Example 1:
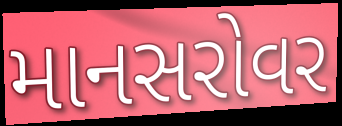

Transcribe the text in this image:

માનસરોવર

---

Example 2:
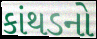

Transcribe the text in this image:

કાંથડનો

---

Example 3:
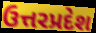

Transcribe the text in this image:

ઉત્તરપ્રદેશ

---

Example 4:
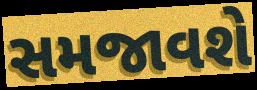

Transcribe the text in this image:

સમજાવશે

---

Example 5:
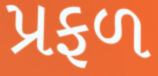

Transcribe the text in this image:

પ્રફળ